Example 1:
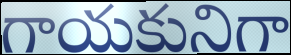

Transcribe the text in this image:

గాయకునిగా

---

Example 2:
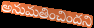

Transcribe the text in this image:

అనుమతించిందని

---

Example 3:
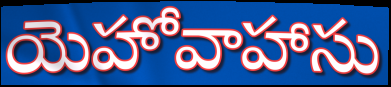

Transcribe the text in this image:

యెహోవాహాసు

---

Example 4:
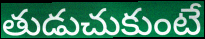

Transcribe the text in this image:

తుడుచుకుంటే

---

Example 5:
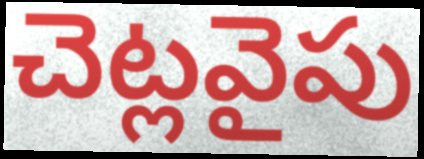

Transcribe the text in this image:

చెట్లవైపు